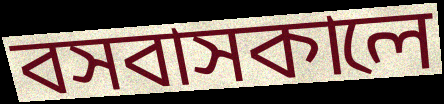
বসবাসকালে